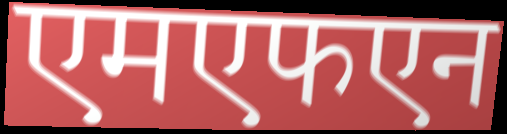
एमएफएन